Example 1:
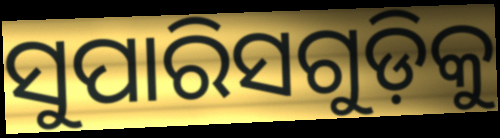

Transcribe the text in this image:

ସୁପାରିସଗୁଡ଼ିକୁ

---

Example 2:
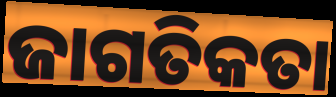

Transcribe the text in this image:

ଜାଗତିକତା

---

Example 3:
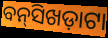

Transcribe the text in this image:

ବନ୍‌ସିଖଡ଼ାଟା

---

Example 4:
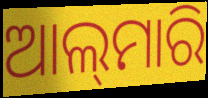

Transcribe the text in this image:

ଆଲ୍‌ମାରି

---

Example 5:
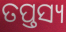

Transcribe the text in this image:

ତପ୍ତସ୍ୟ